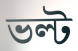
ভল্ট